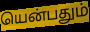
யென்பதும்